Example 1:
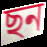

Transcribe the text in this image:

ছন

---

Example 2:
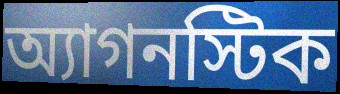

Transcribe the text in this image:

অ্যাগনস্টিক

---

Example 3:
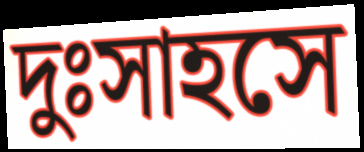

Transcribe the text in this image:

দুঃসাহসে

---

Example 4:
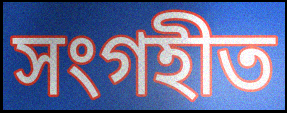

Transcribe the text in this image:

সংগহীত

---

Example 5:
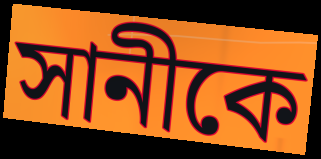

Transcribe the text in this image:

সানীকে